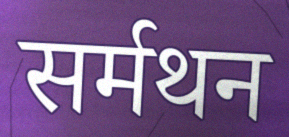
सर्मथन